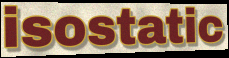
isostatic